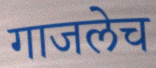
गाजलेच